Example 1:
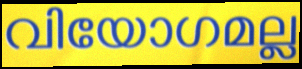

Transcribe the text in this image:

വിയോഗമല്ല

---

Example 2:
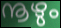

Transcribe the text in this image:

നൂഴും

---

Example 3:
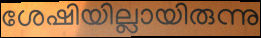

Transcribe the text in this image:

ശേഷിയില്ലായിരുന്നു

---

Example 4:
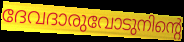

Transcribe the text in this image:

ദേവദാരുവോടുനിന്റെ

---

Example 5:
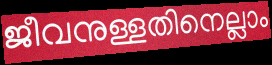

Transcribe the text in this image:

ജീവനുള്ളതിനെല്ലാം